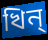
খিন্